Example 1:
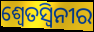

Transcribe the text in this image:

ଶ୍ୱେତସ୍ୱିନୀର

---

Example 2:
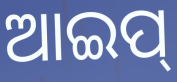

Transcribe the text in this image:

ଆଇପ୍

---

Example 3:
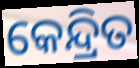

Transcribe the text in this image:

କେନ୍ଦ୍ରିତ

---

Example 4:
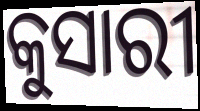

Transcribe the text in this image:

କୁସାରୀ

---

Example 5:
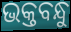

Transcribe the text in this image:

ଭକ୍ତବନ୍ଧୁ